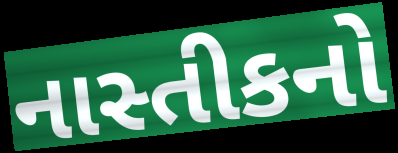
નાસ્તીકનો